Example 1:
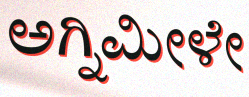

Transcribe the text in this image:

ಅಗ್ನಿಮೀಳೇ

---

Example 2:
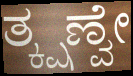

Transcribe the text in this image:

ತ್ಕ್ಷಣ್ವೇ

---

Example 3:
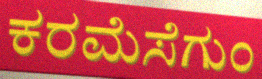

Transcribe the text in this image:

ಕರಮೆಸೆಗುಂ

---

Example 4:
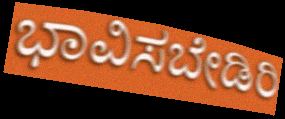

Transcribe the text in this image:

ಭಾವಿಸಬೇಡಿರಿ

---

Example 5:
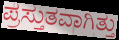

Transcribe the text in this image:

ಪ್ರಸ್ತುತವಾಗಿತ್ತು